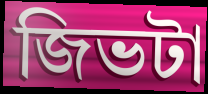
জিভটা